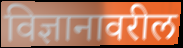
विज्ञानावरील